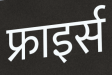
फ्राइर्स